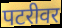
पटरीवर